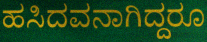
ಹಸಿದವನಾಗಿದ್ದರೂ